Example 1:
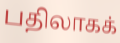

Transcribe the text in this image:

பதிலாகக்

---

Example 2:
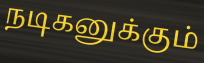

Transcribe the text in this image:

நடிகனுக்கும்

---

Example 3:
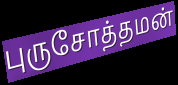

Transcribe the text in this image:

புருசோத்தமன்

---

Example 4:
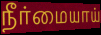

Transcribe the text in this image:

நீர்மையாய்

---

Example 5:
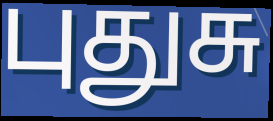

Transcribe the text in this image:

புதுசு